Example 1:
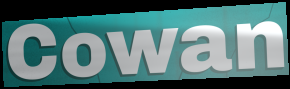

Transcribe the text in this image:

Cowan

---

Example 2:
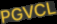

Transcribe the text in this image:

PGVCL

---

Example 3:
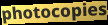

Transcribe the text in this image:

photocopies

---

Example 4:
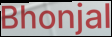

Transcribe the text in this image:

Bhonjal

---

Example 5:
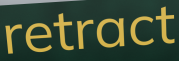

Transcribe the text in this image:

retract